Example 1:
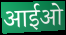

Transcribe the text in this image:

आईओ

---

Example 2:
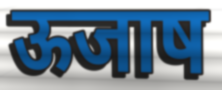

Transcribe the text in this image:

ऊजाष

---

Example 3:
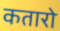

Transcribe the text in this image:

कतारो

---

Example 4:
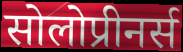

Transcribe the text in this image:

सोलोप्रीनर्स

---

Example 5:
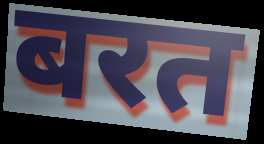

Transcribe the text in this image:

बरत